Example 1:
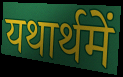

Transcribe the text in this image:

यथार्थमें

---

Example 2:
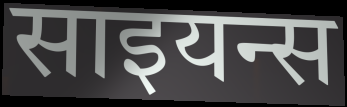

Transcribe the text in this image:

साइयन्स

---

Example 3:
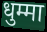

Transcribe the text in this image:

धुम्मा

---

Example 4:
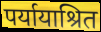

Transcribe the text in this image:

पर्यायाश्रित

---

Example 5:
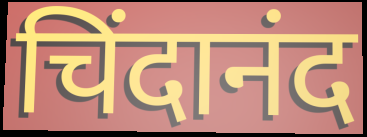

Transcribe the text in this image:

चिंदानंद